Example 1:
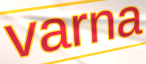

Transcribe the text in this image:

varna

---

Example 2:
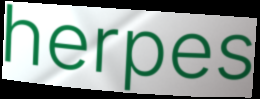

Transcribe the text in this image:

herpes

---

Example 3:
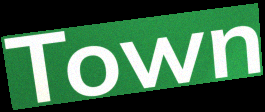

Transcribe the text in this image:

Town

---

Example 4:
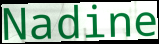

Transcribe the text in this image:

Nadine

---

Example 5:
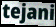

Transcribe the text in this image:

tejani